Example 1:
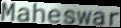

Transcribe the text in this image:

Maheswar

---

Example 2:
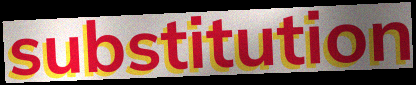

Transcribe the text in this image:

substitution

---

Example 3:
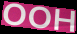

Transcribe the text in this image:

OOH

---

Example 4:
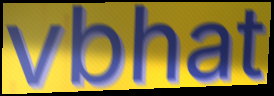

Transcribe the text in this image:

vbhat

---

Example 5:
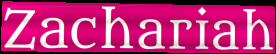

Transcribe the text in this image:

Zachariah